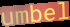
umbel